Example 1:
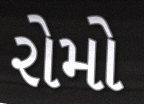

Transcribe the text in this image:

રોમો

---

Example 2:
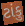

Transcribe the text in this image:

ટાંકુ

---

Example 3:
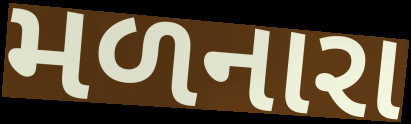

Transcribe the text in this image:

મળનારા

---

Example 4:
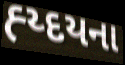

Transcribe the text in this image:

હ્ય્દયના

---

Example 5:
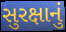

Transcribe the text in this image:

સુરક્ષાનું